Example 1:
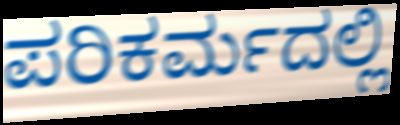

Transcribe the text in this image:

ಪರಿಕರ್ಮದಲ್ಲಿ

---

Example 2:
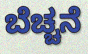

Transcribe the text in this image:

ಬೆಚ್ಚನೆ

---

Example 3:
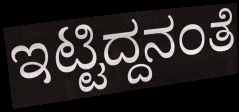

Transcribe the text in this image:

ಇಟ್ಟಿದ್ದನಂತೆ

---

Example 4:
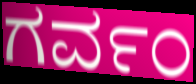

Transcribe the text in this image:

ಗರ್ವಂ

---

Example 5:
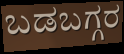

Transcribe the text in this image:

ಬಡಬಗ್ಗರ